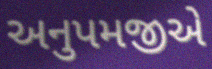
અનુપમજીએ